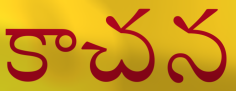
కాచన